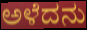
ಅಳೆದನು